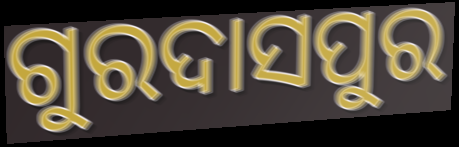
ଗୁରଦାସପୁର